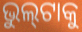
ଭୁଲ୍‍ଟାକୁ